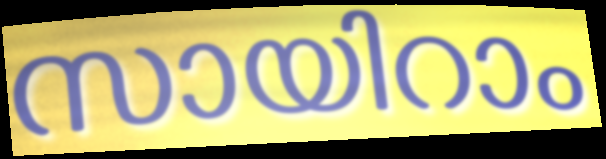
സായിറാം